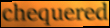
chequered